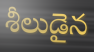
శీలుడైన